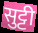
सुट्टी